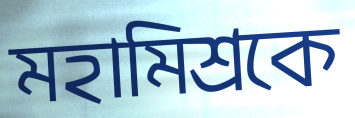
মহামিশ্রকে